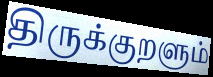
திருக்குறளும்